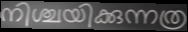
നിശ്ചയിക്കുന്നത്ര